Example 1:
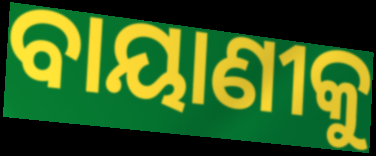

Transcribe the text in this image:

ବାୟାଣୀକୁ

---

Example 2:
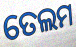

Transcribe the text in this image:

ତେଲମ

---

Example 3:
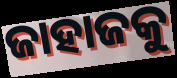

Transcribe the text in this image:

ଜାହାଜକୁ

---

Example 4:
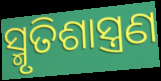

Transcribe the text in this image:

ସ୍ମୃତିଶାସ୍ତ୍ରଣ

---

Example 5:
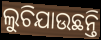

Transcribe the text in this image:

ଲୁଚିଯାଉଛନ୍ତି